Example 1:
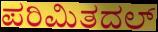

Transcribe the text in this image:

ಪರಿಮಿತದಲ್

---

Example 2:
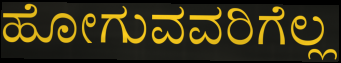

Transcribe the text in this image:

ಹೋಗುವವರಿಗೆಲ್ಲ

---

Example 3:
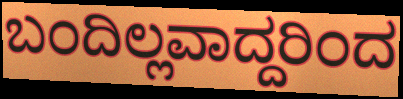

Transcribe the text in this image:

ಬಂದಿಲ್ಲವಾದ್ದರಿಂದ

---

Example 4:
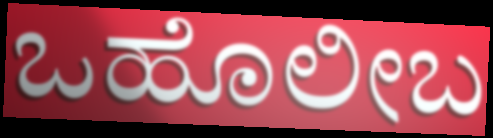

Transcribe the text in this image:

ಒಹೊಲೀಬ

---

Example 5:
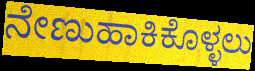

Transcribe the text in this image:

ನೇಣುಹಾಕಿಕೊಳ್ಳಲು